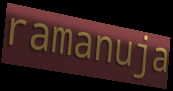
ramanuja